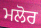
ਮਲੋਰ